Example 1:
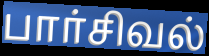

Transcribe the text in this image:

பார்சிவல்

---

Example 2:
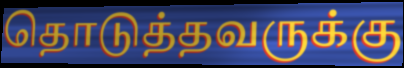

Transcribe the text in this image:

தொடுத்தவருக்கு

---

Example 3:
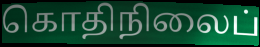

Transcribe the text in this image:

கொதிநிலைப்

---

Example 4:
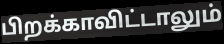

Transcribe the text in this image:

பிறக்காவிட்டாலும்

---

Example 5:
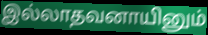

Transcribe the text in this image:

இல்லாதவனாயினும்